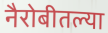
नैरोबीतल्या